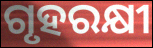
ଗୃହରକ୍ଷୀ